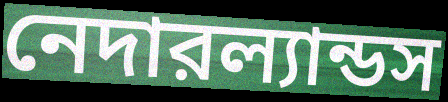
নেদারল্যান্ডস